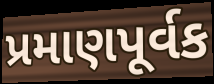
પ્રમાણપૂર્વક